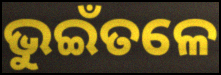
ଭୁଇଁତଳେ